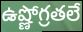
ఉష్ణోగ్రతలే